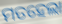
ମତହେଲା